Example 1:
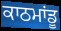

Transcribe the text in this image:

ਕਾਠਮਾਂਡੂ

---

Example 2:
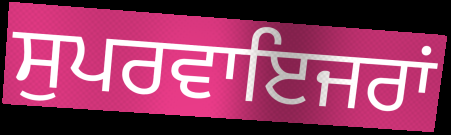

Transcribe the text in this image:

ਸੁਪਰਵਾਇਜਰਾਂ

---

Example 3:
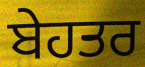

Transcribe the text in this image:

ਬੇਹਤਰ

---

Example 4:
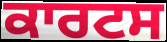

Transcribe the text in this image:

ਕਾਰਟਸ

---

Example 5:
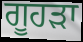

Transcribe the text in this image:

ਗੂਹੜਾ